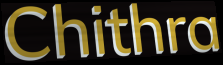
Chithra